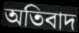
অতিবাদ